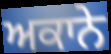
ਅਕਾਨੇ